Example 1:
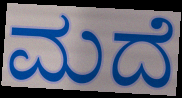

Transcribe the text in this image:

ಮದೆ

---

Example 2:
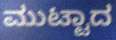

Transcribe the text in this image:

ಮುಟ್ಟಾದ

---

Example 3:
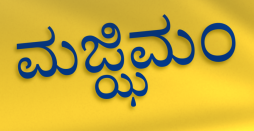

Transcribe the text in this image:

ಮಜ್ಝಿಮಂ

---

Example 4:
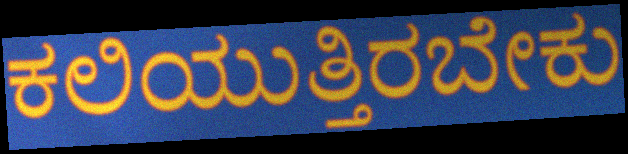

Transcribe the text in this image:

ಕಲಿಯುತ್ತಿರಬೇಕು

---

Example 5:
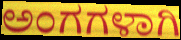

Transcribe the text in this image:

ಅಂಗಗಳಾಗಿ